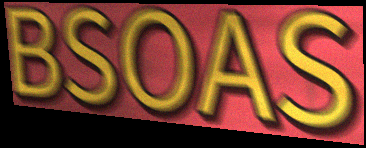
BSOAS